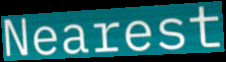
Nearest